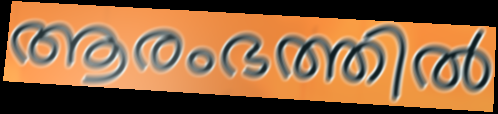
ആരംഭത്തിൽ